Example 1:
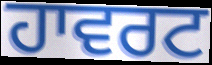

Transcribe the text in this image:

ਹਾਵਰਟ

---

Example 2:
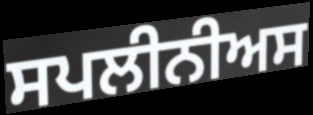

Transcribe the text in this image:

ਸਪਲੀਨੀਅਸ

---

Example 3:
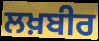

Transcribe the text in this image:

ਲਖ਼ਬੀਰ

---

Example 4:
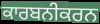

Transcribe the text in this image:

ਕਾਰਬਨੀਕਰਨ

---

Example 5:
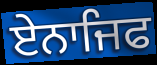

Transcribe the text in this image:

ਏਨਾਜਿਫ